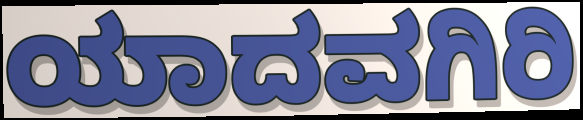
ಯಾದವಗಿರಿ